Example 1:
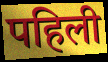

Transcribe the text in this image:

पहिली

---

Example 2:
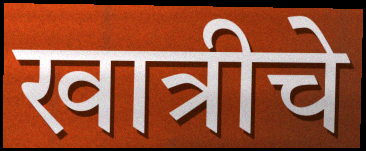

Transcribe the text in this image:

खात्रीचे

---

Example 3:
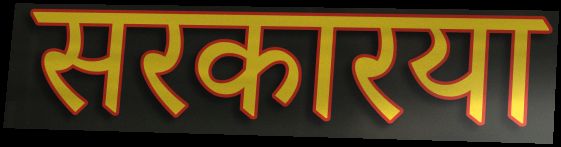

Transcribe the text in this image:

सरकारया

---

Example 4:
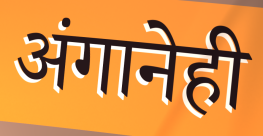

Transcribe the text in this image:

अंगानेही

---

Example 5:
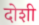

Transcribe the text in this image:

दोशी